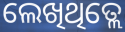
ଲେଖିଥିତ୍ଲେ